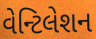
વેન્ટિલેશન